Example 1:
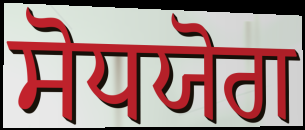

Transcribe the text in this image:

ਸੋਧਯੋਗ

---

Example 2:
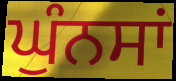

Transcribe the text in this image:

ਘੁੰਨਸਾਂ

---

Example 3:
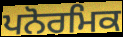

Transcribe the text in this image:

ਪਨੋਰਮਿਕ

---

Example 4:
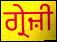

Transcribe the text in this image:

ਗ੍ਰੇਜ਼ੀ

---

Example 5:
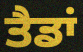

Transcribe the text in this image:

ਤੈਡਾਂ